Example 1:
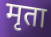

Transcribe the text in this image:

मृता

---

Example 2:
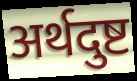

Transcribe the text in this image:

अर्थदुष्ट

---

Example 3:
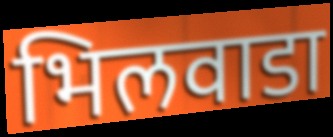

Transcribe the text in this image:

भिलवाडा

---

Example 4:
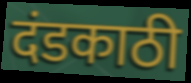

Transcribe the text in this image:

दंडकाठी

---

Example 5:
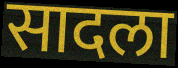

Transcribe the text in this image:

सादला